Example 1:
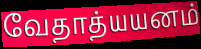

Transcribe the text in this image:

வேதாத்யயனம்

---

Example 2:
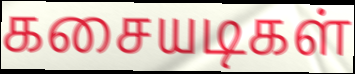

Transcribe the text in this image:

கசையடிகள்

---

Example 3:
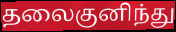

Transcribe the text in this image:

தலைகுனிந்து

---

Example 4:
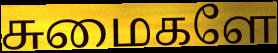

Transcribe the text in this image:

சுமைகளே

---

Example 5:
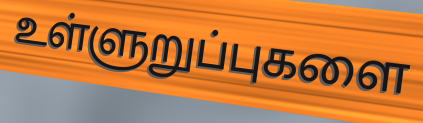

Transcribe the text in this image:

உள்ளுறுப்புகளை